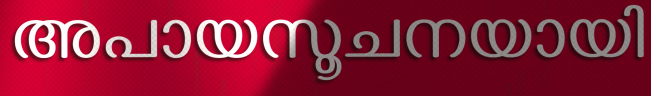
അപായസൂചനയായി